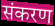
संकरण